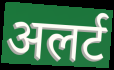
अलर्ट